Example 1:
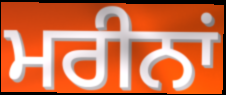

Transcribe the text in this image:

ਮਰੀਨਾਂ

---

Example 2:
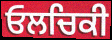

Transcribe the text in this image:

ਓਲਚਿਕੀ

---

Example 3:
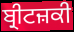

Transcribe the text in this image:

ਬ੍ਰੀਟਜ਼ਕੀ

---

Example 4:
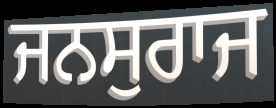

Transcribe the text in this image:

ਜਨਸੁਰਾਜ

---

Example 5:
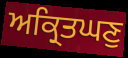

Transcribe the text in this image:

ਅਕ੍ਰਿਤਘਣੁ